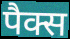
पैक्स